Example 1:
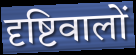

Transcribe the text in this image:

दृष्टिवालों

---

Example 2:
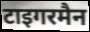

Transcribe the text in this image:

टाइगरमैन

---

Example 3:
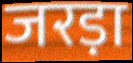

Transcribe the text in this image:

जरड़ा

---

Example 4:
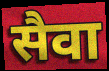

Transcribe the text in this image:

सैवा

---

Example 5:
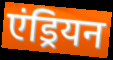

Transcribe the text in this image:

एंड्रियन